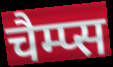
चैम्प्स